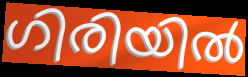
ഗിരിയിൽ